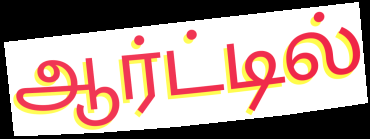
ஆர்ட்டில்